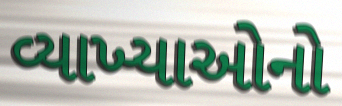
વ્યાખ્યાઓનો